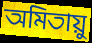
অমিতায়ু